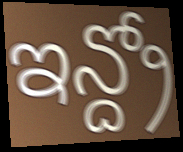
ఇన్ద్రో